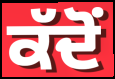
ਕੱਦੋਂ